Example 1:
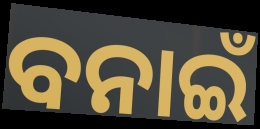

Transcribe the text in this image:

ବନାଇଁ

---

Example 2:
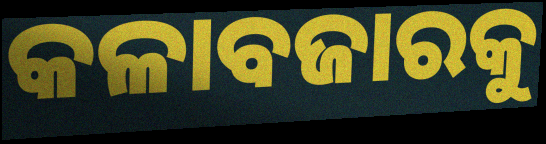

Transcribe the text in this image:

କଳାବଜାରକୁ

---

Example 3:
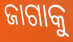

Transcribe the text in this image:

ଜାଗାକୁ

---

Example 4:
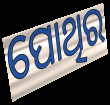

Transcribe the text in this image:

ପୋଥିର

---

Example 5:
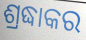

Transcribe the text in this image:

ଶ୍ରଦ୍ଧାକର